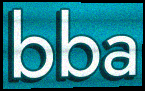
bba